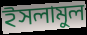
ইসলামুল